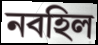
নবহিল